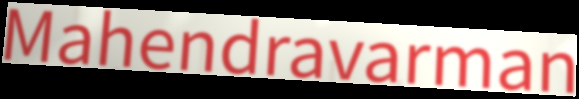
Mahendravarman